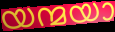
യന്മയാ